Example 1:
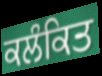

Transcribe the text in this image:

ਕਲੰਕਿਤ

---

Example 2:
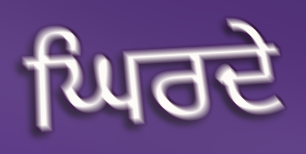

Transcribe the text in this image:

ਘਿਰਦੇ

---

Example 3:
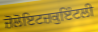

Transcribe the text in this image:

ਜ਼ੋਲੋਇਟਜ਼ਕੁਇੰਟਲੀ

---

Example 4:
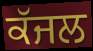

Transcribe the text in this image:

ਕੱਜਲ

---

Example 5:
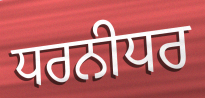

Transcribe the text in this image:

ਧਰਨੀਧਰ